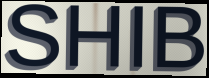
SHIB